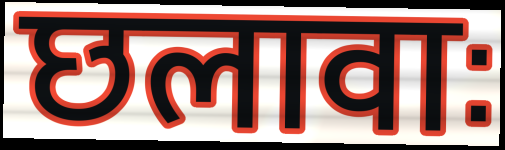
छलावाः